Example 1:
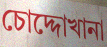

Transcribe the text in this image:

চোদ্দোখানা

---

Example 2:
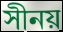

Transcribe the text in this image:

সীনয়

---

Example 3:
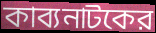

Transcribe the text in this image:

কাব্যনাটকের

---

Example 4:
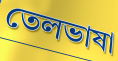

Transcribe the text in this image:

তেলভাষা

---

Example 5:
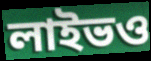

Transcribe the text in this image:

লাইভও